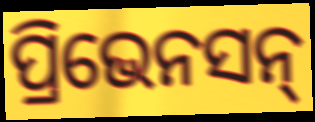
ପ୍ରିଭେନସନ୍